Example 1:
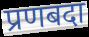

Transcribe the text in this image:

प्रणबदा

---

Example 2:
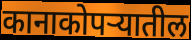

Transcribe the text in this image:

कानाकोपऱ्यातील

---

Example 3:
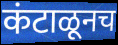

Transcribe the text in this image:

कंटाळूनच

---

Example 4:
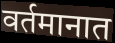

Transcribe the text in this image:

वर्तमानात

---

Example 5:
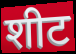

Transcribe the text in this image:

शीट